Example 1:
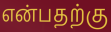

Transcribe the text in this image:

என்பதற்கு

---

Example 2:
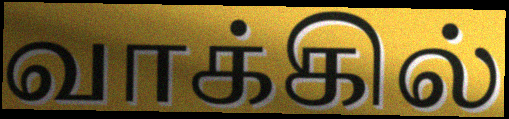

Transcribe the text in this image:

வாக்கில்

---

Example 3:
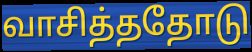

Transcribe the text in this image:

வாசித்ததோடு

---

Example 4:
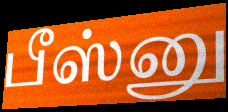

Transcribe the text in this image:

பீஸ்னு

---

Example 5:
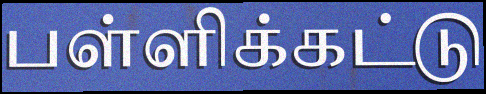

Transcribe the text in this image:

பள்ளிக்கட்டு